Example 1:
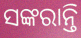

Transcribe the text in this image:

ସଙ୍କରାନ୍ତି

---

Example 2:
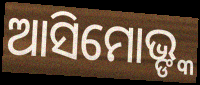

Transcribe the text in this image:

ଆସିମୋଭ୍ଙ୍କ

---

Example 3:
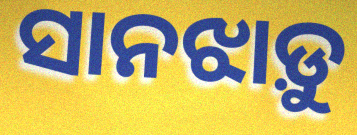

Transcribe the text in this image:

ସାନଝାଡ଼ୁ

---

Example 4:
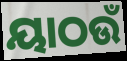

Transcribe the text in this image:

ୟାଠଉଁ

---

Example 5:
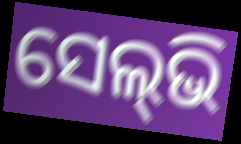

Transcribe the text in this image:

ସେଲ୍‌ଭି